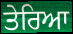
ਤੇਰਿਆ